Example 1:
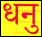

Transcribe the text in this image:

धनु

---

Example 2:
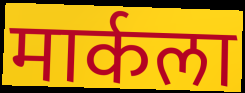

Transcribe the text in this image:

मार्कला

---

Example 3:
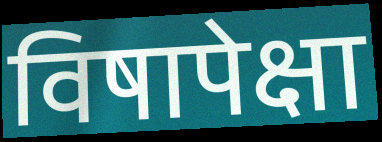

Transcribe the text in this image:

विषापेक्षा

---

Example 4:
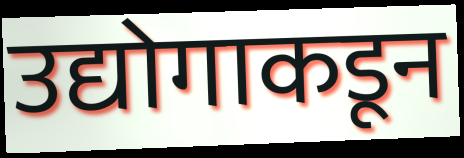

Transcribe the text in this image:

उद्योगाकडून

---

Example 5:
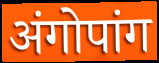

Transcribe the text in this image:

अंगोपांग